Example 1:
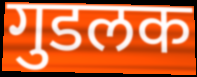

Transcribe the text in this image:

गुडलक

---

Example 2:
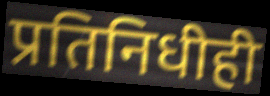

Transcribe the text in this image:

प्रतिनिधीही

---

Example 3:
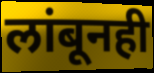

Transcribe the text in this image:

लांबूनही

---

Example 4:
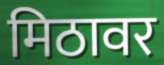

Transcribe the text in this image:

मिठावर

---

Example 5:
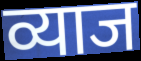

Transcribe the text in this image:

व्याज